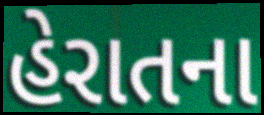
હેરાતના